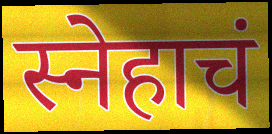
स्नेहाचं